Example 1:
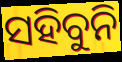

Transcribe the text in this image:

ସହିବୁନି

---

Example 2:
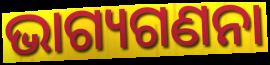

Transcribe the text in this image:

ଭାଗ୍ୟଗଣନା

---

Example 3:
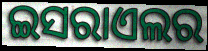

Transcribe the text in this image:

ଇସରାଏଲର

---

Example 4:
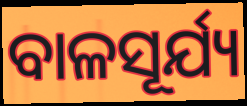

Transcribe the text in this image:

ବାଳସୂର୍ଯ୍ୟ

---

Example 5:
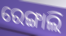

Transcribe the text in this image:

ରେଙ୍ଗାଲି